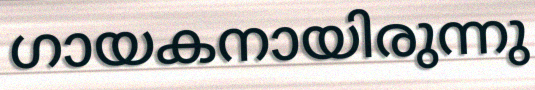
ഗായകനായിരുന്നു